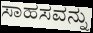
ಸಾಹಸವನ್ನು